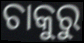
ଚାକୁରୁ